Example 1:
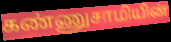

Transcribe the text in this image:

கண்ணுசாமியின்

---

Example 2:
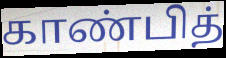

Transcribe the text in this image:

காண்பித்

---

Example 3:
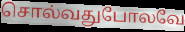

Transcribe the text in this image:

சொல்வதுபோலவே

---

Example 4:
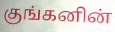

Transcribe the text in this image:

குங்கனின்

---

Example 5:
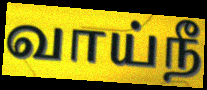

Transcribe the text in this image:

வாய்நீ